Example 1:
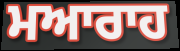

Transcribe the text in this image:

ਮਆਰਾਹ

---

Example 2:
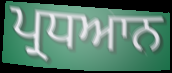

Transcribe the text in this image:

ਪ੍ਰਧਆਨ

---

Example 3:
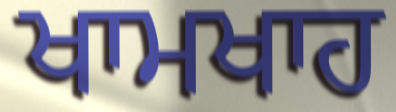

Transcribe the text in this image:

ਖਾਮਖਾਹ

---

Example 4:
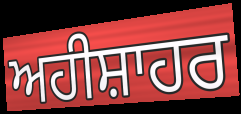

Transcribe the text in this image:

ਅਹੀਸ਼ਾਹਰ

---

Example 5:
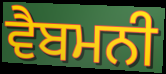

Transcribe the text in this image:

ਵੈਬਮਨੀ